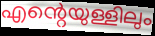
എന്റെയുള്ളിലും